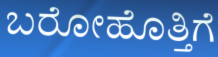
ಬರೋಹೊತ್ತಿಗೆ